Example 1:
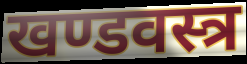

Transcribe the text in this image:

खण्डवस्त्र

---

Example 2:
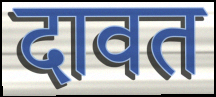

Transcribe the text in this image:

दावत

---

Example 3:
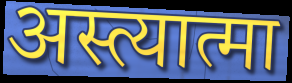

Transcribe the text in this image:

अस्त्यात्मा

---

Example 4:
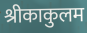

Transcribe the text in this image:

श्रीकाकुलम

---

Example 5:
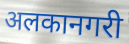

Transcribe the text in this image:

अलकानगरी